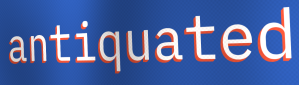
antiquated